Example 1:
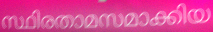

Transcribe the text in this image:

സ്ഥിരതാമസമാക്കിയ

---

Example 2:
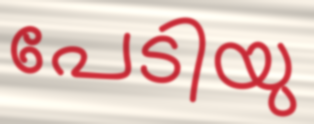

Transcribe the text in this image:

പേടിയു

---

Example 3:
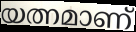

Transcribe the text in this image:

യത്നമാണ്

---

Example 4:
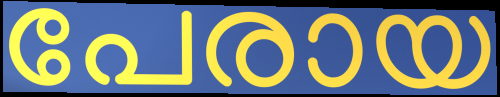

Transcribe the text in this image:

പേരായ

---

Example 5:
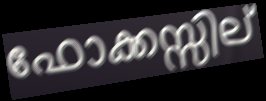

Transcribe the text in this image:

ഫോക്കസ്സില്